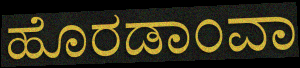
ಹೊರಡಾಂವಾ